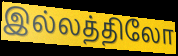
இல்லத்திலோ